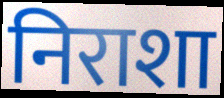
निराशा